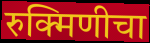
रुक्मिणीचा